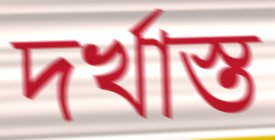
দৰ্খাস্ত